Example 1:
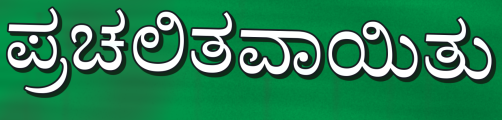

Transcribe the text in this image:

ಪ್ರಚಲಿತವಾಯಿತು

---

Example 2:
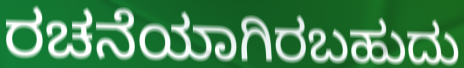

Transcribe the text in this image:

ರಚನೆಯಾಗಿರಬಹುದು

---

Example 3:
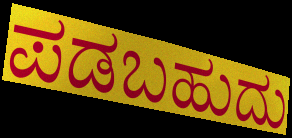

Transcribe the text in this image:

ಪಡಬಹುದು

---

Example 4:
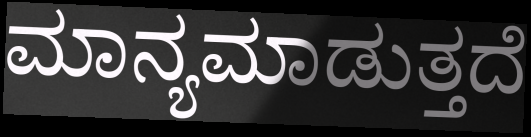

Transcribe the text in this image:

ಮಾನ್ಯಮಾಡುತ್ತದೆ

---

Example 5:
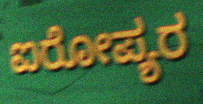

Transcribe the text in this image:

ಐರೋಪ್ಯರ